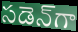
సడెన్‌గా